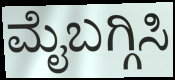
ಮೈಬಗ್ಗಿಸಿ